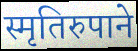
स्मृतिरुपाने